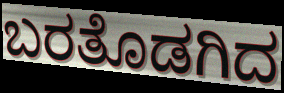
ಬರತೊಡಗಿದ